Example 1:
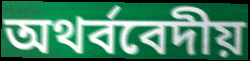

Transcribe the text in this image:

অথর্ববেদীয়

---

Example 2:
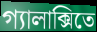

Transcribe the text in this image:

গ্যালাক্সিতে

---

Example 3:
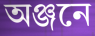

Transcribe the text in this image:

অঞ্জনে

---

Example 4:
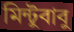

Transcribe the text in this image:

মিন্টুবাবু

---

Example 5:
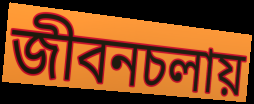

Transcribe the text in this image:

জীবনচলায়